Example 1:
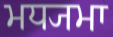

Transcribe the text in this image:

ਮਧ੍ਯਮਾ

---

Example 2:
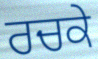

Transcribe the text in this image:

ਰਚਕੇ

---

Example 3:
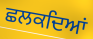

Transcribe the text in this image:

ਛਲਕਦਿਆਂ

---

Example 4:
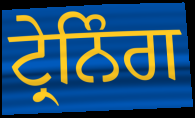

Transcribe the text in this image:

ਟ੍ਰੇਨਿੰਗ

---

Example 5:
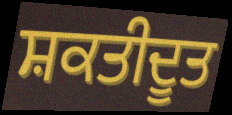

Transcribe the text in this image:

ਸ਼ਕਤੀਦੂਤ